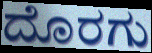
ದೊರಗು